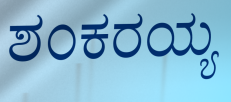
ಶಂಕರಯ್ಯ